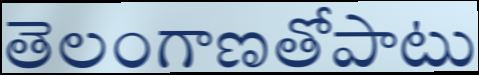
తెలంగాణతోపాటు